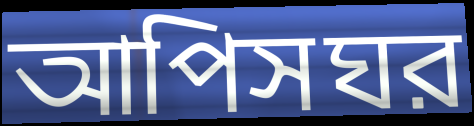
আপিসঘর